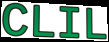
CLIL